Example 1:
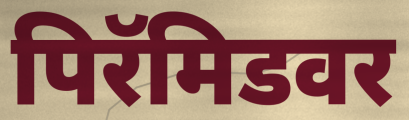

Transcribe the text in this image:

पिरॅमिडवर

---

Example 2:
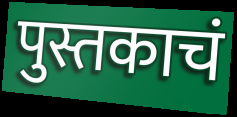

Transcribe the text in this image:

पुस्तकाचं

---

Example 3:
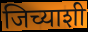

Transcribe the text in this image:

जिच्याशी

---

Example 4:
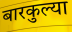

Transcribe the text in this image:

बारकुल्या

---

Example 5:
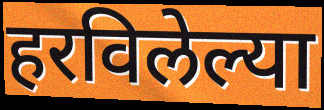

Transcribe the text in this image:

हरविलेल्या